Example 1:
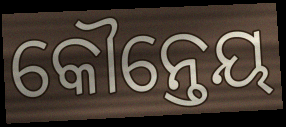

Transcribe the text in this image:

କୌନ୍ତେୟ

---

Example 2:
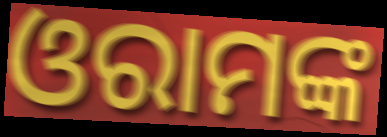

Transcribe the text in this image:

ଓରାମଙ୍କ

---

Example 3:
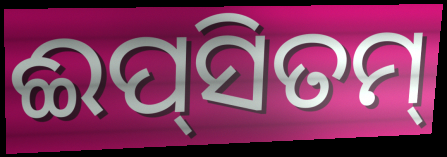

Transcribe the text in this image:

ଈପ୍‌ସିତମ୍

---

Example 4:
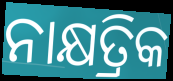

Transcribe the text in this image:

ନାକ୍ଷତ୍ରିକ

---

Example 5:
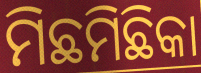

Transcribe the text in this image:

ମିଛମିଛିକା